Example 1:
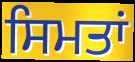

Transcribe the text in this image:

ਸਿਮਤਾਂ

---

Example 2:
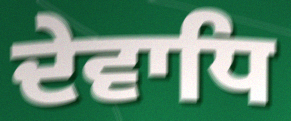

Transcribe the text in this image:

ਦੇਵਾਧਿ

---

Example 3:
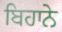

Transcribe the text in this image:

ਬਿਹਾਨੇ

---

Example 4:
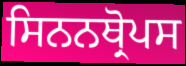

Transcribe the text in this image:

ਸਿਨਨਥ੍ਰੋਪਸ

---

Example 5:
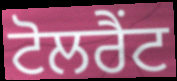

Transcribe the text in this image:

ਟੋਲਰੈਂਟ